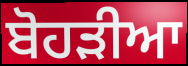
ਬੋਹੜੀਆ